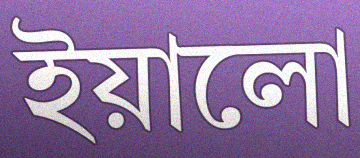
ইয়ালো